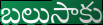
బలుసాకు